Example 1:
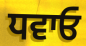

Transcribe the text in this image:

ਧਵਾਓ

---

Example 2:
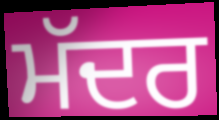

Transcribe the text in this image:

ਮੱਦਰ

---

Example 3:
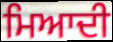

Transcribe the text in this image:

ਮਿਆਦੀ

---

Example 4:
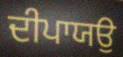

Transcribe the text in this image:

ਦੀਪਾਯਉ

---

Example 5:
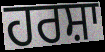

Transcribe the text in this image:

ਹਰਸ਼ਾ